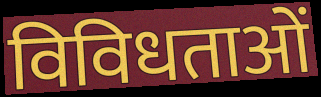
विविधताओं